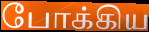
போக்கிய